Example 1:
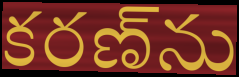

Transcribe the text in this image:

కరణ్‌ను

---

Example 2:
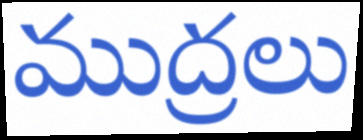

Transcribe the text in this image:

ముద్రలు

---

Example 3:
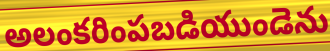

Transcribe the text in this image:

అలంకరింపబడియుండెను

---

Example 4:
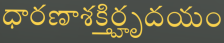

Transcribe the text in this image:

ధారణాశక్తిర్హృదయం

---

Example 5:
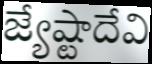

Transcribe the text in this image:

జ్యేష్టాదేవి